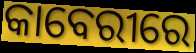
କାବେରୀରେ